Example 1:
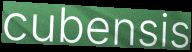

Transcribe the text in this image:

cubensis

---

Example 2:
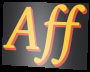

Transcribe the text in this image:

Aff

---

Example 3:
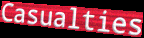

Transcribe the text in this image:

Casualties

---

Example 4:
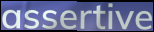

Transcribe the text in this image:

assertive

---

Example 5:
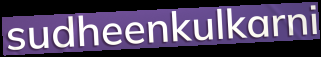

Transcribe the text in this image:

sudheenkulkarni